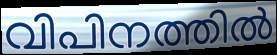
വിപിനത്തിൽ